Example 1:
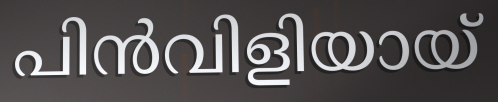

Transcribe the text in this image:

പിൻവിളിയായ്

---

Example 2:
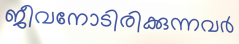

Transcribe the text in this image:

ജീവനോടിരിക്കുന്നവർ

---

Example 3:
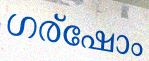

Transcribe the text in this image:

ഗര്ഷോം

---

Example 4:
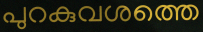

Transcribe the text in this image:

പുറകുവശത്തെ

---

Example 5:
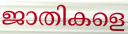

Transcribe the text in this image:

ജാതികളെ